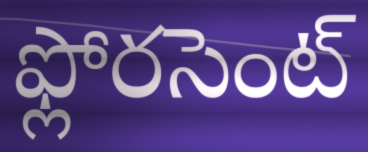
ఫ్లోరసెంట్